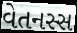
વેતનસ્સ